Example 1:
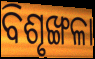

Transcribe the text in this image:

ବିଶୃଙ୍ଖଳା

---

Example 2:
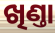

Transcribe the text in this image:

ଖିଣ୍ତା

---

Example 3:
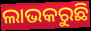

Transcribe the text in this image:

ଲାଭକରୁଛି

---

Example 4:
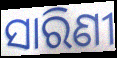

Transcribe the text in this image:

ସାରିଣୀ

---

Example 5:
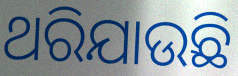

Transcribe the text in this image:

ଥରିଯାଉଛି